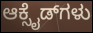
ಆಕ್ಸೈಡ್‌ಗಳು